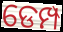
ଡେମ୍ପ